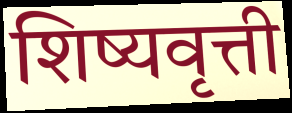
शिष्यवृत्ती